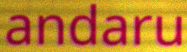
andaru